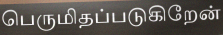
பெருமிதப்படுகிறேன்